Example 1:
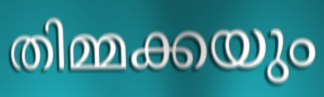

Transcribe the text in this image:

തിമ്മക്കയും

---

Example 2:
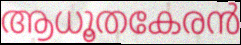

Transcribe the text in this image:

ആധൂതകേരൻ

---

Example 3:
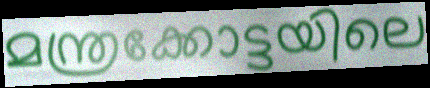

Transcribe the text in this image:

മന്ത്രക്കോട്ടയിലെ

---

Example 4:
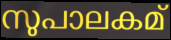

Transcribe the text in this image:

സുപാലകമ്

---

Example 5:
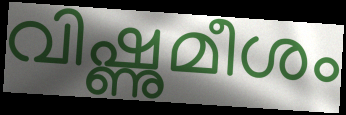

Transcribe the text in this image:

വിഷ്ണുമീശം